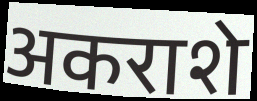
अकराशे